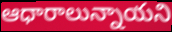
ఆధారాలున్నాయని